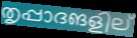
തൃപ്പാദങളില്